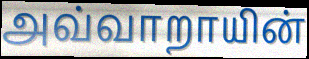
அவ்வாறாயின்